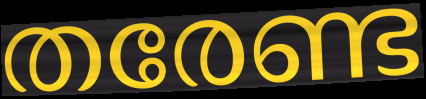
തരേണ്ട